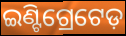
ଇଣ୍ଟିଗ୍ରେଟେଡ଼